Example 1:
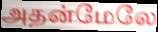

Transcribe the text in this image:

அதன்மேலே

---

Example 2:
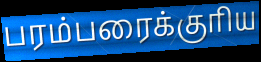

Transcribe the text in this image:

பரம்பரைக்குரிய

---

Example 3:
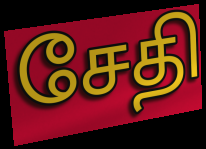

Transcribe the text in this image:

சேதி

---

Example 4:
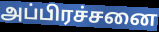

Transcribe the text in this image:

அப்பிரச்சனை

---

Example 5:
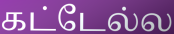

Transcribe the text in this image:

கட்டேல்ல